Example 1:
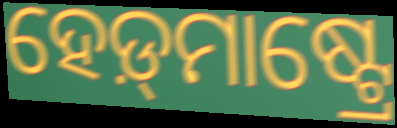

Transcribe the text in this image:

ହେଡ଼୍‍ମାଷ୍ଟ୍ରେ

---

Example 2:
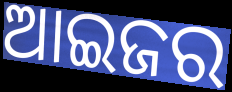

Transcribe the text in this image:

ଆଇଜର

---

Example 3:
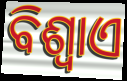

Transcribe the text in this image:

ବିଶ୍ୱାଏ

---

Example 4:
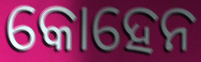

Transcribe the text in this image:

କୋହେନ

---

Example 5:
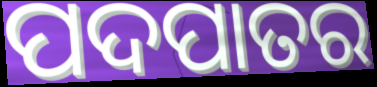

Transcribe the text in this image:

ପଦପାତର